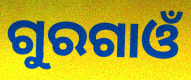
ଗୁରଗାଓଁ